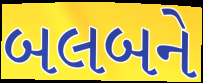
બલબને